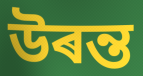
উৰন্ত